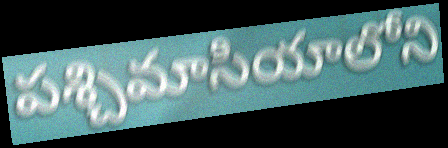
పశ్చిమాసియాలోని